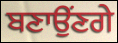
ਬਣਾਉਂਣਗੇ